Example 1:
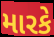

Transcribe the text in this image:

મારકે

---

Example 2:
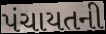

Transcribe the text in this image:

પંચાયતની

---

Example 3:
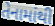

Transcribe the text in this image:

તેનામાંથી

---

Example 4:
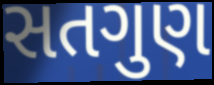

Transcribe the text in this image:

સતગુણ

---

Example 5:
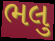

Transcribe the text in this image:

ભલુ